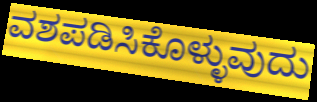
ವಶಪಡಿಸಿಕೊಳ್ಳುವುದು